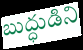
బుద్ధుడిని